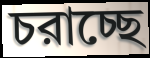
চরাচ্ছে